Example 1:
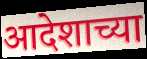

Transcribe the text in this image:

आदेशाच्या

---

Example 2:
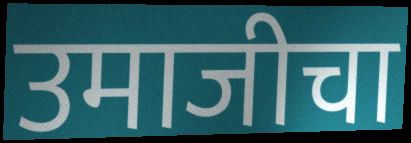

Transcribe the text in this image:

उमाजीचा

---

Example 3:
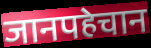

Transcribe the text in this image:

जानपहेचान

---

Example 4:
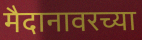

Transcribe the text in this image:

मैदानावरच्या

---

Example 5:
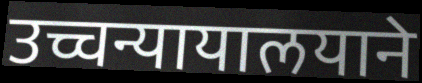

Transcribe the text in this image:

उच्चन्यायालयाने